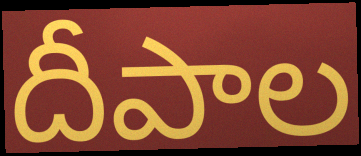
దీపాల